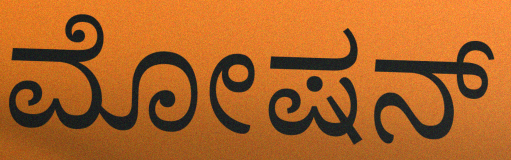
ಮೋಷನ್